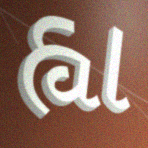
હ્વા